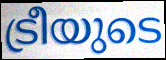
ട്രീയുടെ